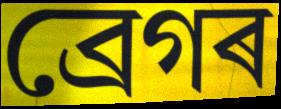
ব্ৰেগৰ